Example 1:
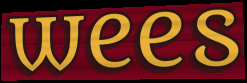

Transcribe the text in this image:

wees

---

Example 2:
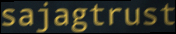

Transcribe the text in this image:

sajagtrust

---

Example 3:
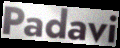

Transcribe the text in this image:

Padavi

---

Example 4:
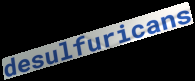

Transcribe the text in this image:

desulfuricans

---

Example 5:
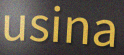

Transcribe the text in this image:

usina